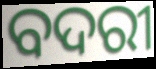
ବଦରୀ